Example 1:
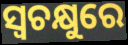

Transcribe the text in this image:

ସ୍ୱଚକ୍ଷୁରେ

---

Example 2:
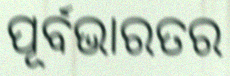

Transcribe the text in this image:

ପୂର୍ବଭାରତର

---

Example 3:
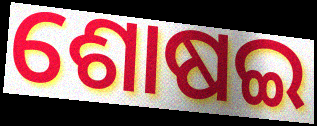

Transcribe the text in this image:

ଶୋଷଇ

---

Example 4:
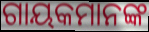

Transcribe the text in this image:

ଗାୟକମାନଙ୍କ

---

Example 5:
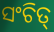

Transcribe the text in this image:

ସଂଚିତ୍